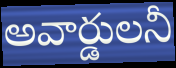
అవార్డులనీ